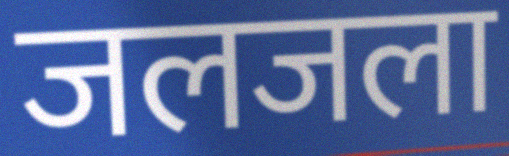
जलजला